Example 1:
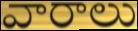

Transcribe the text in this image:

వారాలు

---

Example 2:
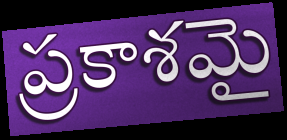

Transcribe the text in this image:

ప్రకాశమై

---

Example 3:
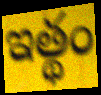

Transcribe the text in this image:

ఇత్థం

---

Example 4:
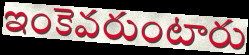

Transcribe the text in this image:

ఇంకెవరుంటారు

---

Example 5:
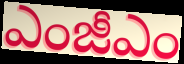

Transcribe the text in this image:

ఎంజీఎం